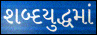
શબ્દયુદ્ધમાં